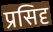
प्रसिदृ